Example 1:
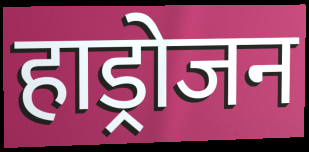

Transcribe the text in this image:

हाड्रोजन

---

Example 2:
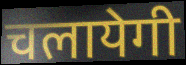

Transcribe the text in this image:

चलायेगी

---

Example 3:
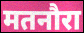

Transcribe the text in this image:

मतनौरा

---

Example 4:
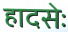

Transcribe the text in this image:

हादसेः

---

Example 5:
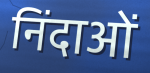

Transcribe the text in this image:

निंदाओं